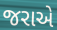
જરાએ